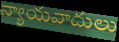
న్యాయవాదులు